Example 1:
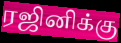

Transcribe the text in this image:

ரஜினிக்கு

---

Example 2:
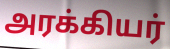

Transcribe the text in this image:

அரக்கியர்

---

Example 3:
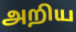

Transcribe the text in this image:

அறிய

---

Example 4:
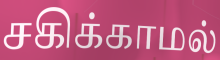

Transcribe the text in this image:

சகிக்காமல்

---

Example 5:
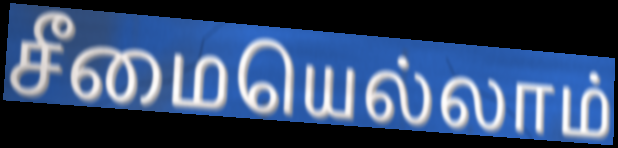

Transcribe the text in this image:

சீமையெல்லாம்